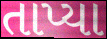
તાપ્યા